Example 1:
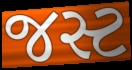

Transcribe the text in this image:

જસ્ટ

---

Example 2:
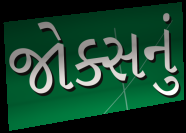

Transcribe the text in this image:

જોક્સનું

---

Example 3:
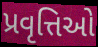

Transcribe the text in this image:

પ્રવૃત્તિઓ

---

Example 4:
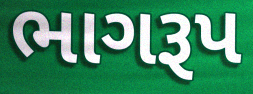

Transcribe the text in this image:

ભાગરૂપ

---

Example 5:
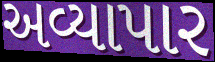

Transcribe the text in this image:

અવ્યાપાર